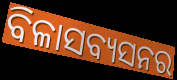
ବିଳାସବ୍ୟସନର